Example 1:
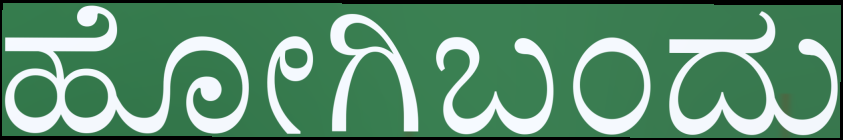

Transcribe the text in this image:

ಹೋಗಿಬಂದು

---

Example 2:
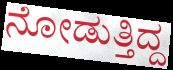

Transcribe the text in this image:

ನೋಡುತ್ತಿದ್ದ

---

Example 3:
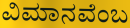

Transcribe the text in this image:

ವಿಮಾನವೆಂಬ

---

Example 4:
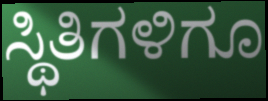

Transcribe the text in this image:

ಸ್ಥಿತಿಗಳಿಗೂ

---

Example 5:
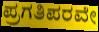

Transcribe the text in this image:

ಪ್ರಗತಿಪರವೇ